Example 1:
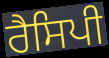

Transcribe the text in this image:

ਰੈਸਿਪੀ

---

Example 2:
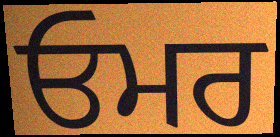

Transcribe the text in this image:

ਓਮਰ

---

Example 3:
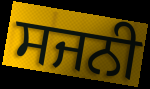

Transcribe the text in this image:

ਸਜਨੀ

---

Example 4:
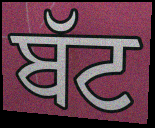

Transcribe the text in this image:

ਬੱਟ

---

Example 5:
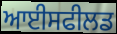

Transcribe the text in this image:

ਆਈਸਫੀਲਡ